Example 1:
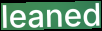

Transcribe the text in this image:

leaned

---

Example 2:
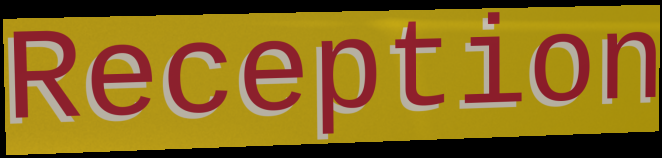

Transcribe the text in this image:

Reception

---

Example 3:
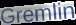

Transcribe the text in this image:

Gremlin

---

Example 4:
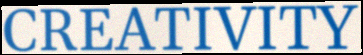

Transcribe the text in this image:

CREATIVITY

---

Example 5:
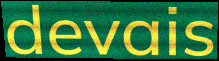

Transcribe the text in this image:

devais